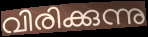
വിരിക്കുന്നു